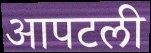
आपटली